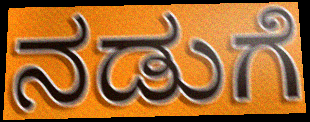
ನಡುಗೆ